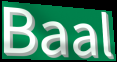
Baal